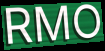
RMO